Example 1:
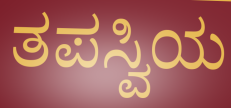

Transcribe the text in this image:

ತಪಸ್ವಿಯ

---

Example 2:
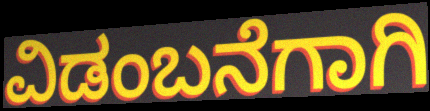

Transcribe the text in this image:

ವಿಡಂಬನೆಗಾಗಿ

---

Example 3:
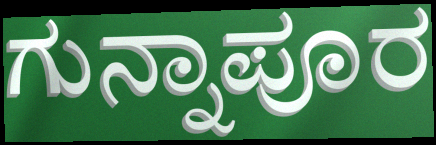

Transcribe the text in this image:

ಗುನ್ನಾಪೂರ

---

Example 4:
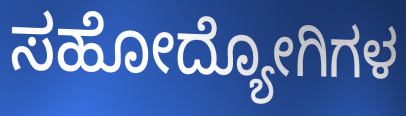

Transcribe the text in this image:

ಸಹೋದ್ಯೋಗಿಗಳ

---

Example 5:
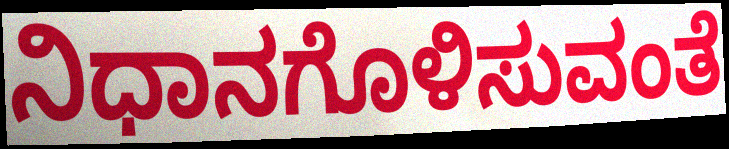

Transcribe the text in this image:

ನಿಧಾನಗೊಳಿಸುವಂತೆ